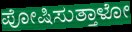
ಪೋಷಿಸುತ್ತಾಳೋ